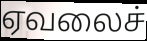
ஏவலைச்